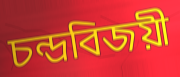
চন্দ্রবিজয়ী